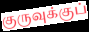
குருவுக்குப்